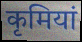
कृमियां